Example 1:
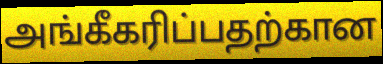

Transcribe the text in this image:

அங்கீகரிப்பதற்கான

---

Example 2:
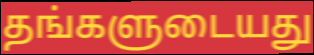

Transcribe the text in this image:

தங்களுடையது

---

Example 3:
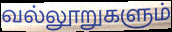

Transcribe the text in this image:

வல்லூறுகளும்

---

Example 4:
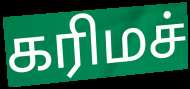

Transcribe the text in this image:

கரிமச்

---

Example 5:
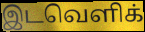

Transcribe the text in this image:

இடவெளிக்